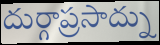
దుర్గాప్రసాద్ను